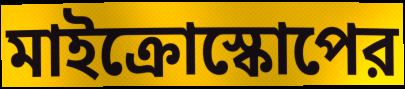
মাইক্রোস্কোপের